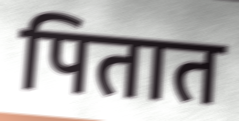
पितात